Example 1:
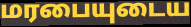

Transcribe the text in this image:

மரபையுடைய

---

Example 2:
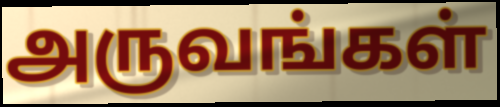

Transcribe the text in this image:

அருவங்கள்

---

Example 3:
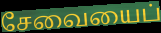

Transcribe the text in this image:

சேவையைப்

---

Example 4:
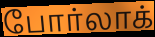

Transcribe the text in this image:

போர்லாக்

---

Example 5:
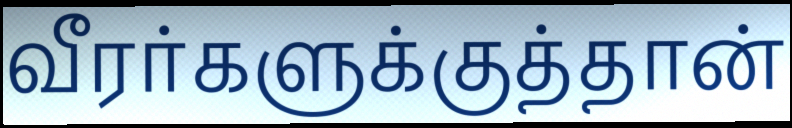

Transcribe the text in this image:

வீரர்களுக்குத்தான்